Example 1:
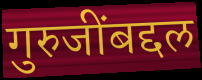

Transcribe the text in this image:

गुरुजींबद्दल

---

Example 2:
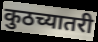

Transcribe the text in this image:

कुठच्यातरी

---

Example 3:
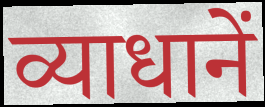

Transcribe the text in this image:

व्याधानें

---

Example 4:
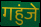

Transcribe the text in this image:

गहुंजे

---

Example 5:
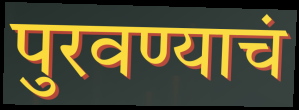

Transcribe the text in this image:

पुरवण्याचं